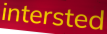
intersted